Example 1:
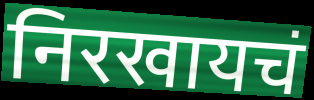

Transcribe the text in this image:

निरखायचं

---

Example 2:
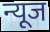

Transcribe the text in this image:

न्यूज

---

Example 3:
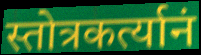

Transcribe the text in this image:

स्तोत्रकर्त्यानं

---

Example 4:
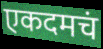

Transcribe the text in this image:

एकदमचं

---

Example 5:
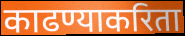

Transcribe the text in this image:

काढण्याकरिता